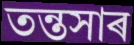
তন্তসাৰ